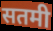
सतमी